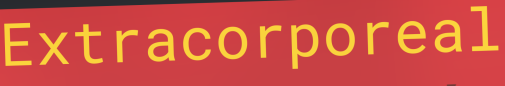
Extracorporeal